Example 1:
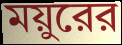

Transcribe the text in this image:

ময়ুরের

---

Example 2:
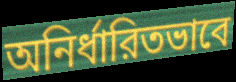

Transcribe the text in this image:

অনির্ধারিতভাবে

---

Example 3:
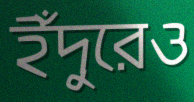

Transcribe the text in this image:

ইঁদুরেও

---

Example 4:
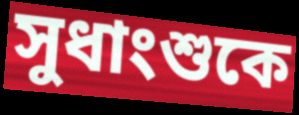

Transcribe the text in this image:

সুধাংশুকে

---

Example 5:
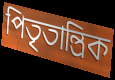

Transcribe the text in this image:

পিতৃতান্ত্রিক